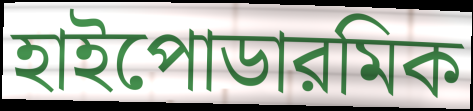
হাইপোডারমিক